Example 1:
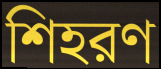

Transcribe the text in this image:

শিহরণ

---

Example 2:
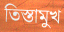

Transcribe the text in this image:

তিস্তামুখ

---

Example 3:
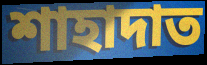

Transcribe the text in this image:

শাহাদাত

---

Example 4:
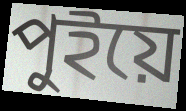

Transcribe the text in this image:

পুইয়ে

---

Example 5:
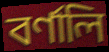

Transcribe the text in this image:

বর্ণালি